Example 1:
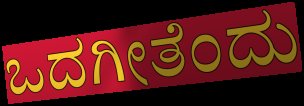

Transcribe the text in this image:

ಒದಗೀತೆಂದು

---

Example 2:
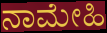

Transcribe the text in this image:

ನಾಮೇಹಿ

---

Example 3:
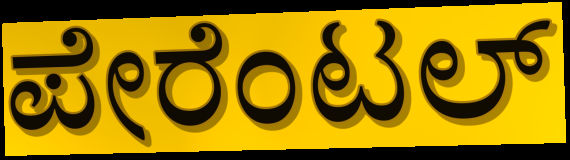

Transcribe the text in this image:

ಪೇರೆಂಟಲ್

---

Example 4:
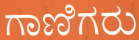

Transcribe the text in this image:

ಗಾಣಿಗರು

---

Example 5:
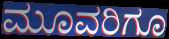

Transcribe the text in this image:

ಮೂವರಿಗೂ